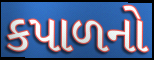
કપાળનો